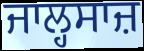
ਜਾਲ੍ਹਸਾਜ਼